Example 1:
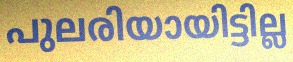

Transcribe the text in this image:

പുലരിയായിട്ടില്ല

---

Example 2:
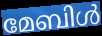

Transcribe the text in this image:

മേബിൾ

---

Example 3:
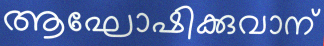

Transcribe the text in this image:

ആഘോഷിക്കുവാന്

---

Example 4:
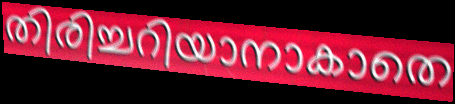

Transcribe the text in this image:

തിരിച്ചറിയാനാകാതെ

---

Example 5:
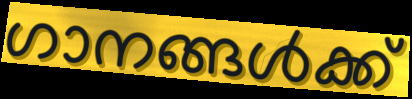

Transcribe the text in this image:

ഗാനങ്ങൾക്ക്